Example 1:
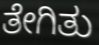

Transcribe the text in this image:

ತೇಗಿತು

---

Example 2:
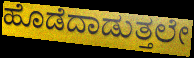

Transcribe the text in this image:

ಹೊಡೆದಾಡುತ್ತಲೇ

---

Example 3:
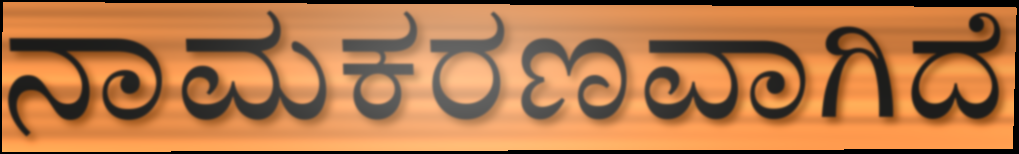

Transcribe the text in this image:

ನಾಮಕರಣವಾಗಿದೆ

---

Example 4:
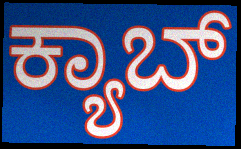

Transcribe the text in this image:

ಕ್ಯಾಬ್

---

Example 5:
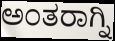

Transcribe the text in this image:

ಅಂತರಾಗ್ನಿ